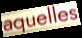
aquelles